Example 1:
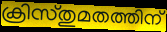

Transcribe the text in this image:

ക്രിസ്തുമതത്തിന്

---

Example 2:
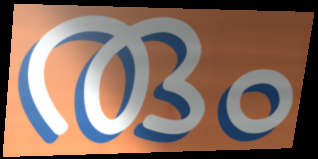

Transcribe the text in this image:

രും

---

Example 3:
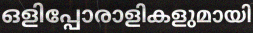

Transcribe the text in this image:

ഒളിപ്പോരാളികളുമായി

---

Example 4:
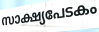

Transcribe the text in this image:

സാക്ഷ്യപേടകം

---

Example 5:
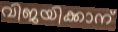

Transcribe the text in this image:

വിജയിക്കാന്